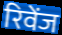
रिवेंज